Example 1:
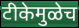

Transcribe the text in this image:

टीकेमुळेच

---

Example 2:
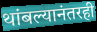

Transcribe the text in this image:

थांबल्यानंतरही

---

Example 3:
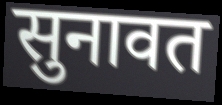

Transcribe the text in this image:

सुनावत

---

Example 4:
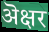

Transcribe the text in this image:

ऄक्षर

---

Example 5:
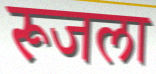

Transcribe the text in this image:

रूजला